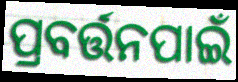
ପ୍ରବର୍ତ୍ତନପାଇଁ